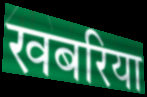
खबरिया